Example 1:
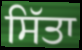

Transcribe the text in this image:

ਸਿੱਤਾ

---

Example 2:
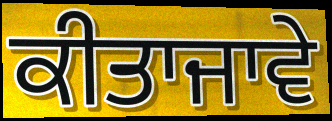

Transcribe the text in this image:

ਕੀਤਾਜਾਵੇ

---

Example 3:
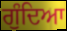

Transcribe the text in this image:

ਗੁੰਦਿਆ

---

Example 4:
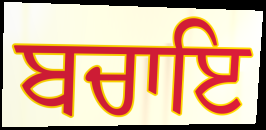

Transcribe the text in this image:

ਬਚਾਇ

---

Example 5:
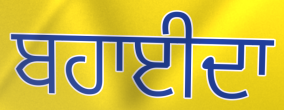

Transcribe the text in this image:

ਬਹਾਈਦਾ